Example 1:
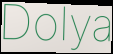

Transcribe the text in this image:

Dolya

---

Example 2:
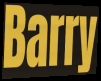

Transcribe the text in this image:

Barry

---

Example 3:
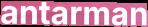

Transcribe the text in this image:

antarman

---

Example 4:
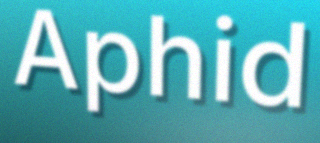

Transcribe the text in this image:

Aphid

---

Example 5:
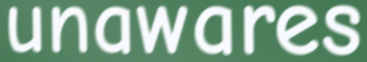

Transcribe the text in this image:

unawares